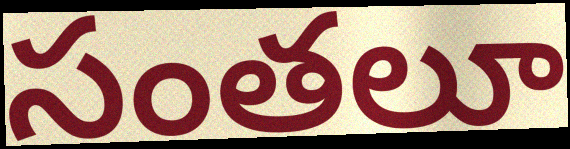
సంతలూ